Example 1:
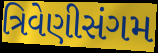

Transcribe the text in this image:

ત્રિવેણીસંગમ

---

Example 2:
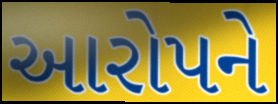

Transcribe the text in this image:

આરોપને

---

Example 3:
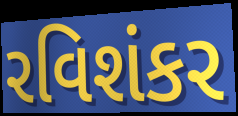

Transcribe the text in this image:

રવિશંકર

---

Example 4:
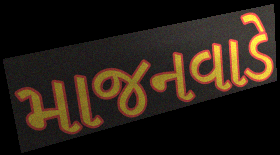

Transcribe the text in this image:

માજનવાડે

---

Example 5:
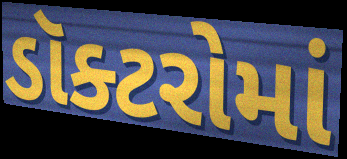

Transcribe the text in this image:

ડૉક્ટરોમાં